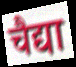
चैद्या